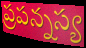
ప్రపన్నస్య